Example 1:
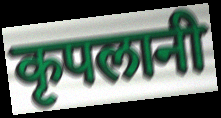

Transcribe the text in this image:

कृपलानी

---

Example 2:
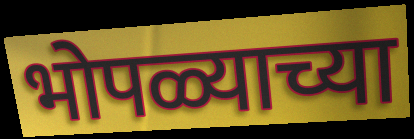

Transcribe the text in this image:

भोपळ्याच्या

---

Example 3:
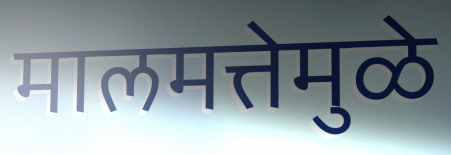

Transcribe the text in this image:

मालमत्तेमुळे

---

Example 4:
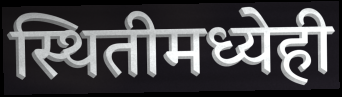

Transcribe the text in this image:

स्थितीमध्येही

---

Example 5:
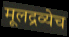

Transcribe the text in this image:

मूलद्रव्येच